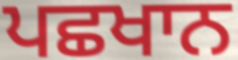
ਪਛਖਾਨ